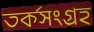
তর্কসংগ্রহ